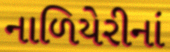
નાળિયેરીનાં